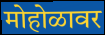
मोहोळावर